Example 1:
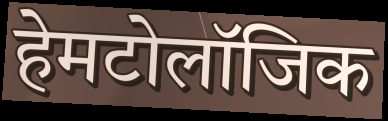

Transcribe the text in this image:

हेमटोलॉजिक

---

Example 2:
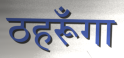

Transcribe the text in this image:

ठहरूँगा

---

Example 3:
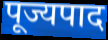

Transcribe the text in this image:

पूज्यपाद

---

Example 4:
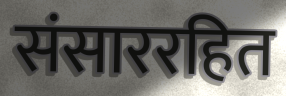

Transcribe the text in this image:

संसाररहित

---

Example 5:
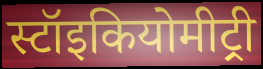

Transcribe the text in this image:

स्टॉइकियोमीट्री